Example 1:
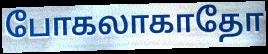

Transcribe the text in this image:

போகலாகாதோ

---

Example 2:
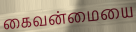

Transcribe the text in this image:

கைவன்மையை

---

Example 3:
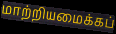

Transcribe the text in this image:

மாற்றியமைக்கப்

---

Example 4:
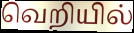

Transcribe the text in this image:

வெறியில்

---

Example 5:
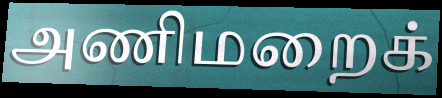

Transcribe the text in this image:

அணிமறைக்